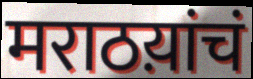
मराठय़ांचं